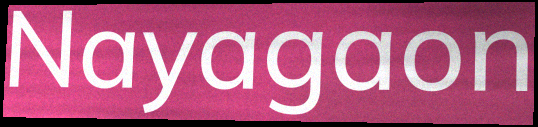
Nayagaon